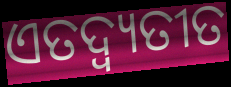
ଏତଦ୍ବ୍ୟତୀତ